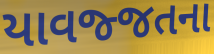
યાવજ્જતના